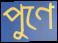
পুণে